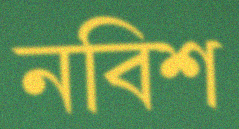
নবিশ